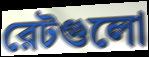
রেটগুলো